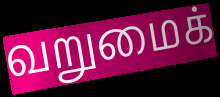
வறுமைக்